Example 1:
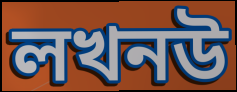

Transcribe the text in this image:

লখনউ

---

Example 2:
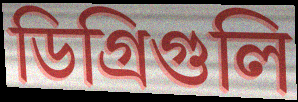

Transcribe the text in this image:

ডিগ্রিগুলি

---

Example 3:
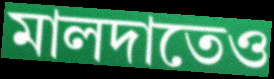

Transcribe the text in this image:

মালদাতেও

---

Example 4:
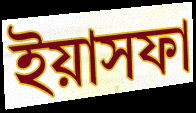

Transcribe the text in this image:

ইয়াসফা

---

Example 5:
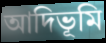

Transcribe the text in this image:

আদিভূমি